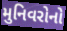
મુનિવરોનો